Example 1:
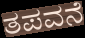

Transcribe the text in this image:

ತಪವನೆ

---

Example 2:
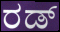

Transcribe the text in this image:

ರಡ್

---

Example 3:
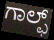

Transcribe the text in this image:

ಗಾಲ್ಫ್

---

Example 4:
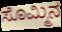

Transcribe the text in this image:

ಸೊಮ್ಮಿನ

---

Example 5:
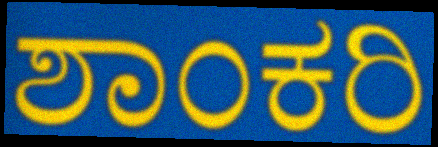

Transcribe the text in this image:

ಶಾಂಕರಿ